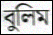
বুলিম